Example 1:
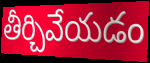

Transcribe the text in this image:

తీర్చివేయడం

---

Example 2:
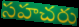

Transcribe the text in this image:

సహచరు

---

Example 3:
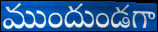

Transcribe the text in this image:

ముందుండగా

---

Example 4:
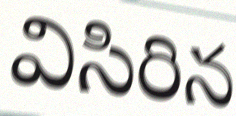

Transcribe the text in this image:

విసిరిన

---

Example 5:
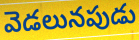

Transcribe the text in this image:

వెడలునపుడు